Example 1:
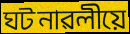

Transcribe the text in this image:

ঘটনাৱলীয়ে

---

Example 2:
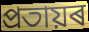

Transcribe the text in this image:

প্ৰতায়ৰ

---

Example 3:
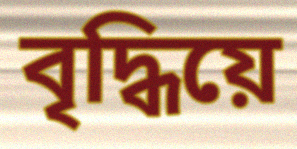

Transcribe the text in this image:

বৃদ্ধিয়ে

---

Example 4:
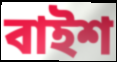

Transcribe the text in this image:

বাইশ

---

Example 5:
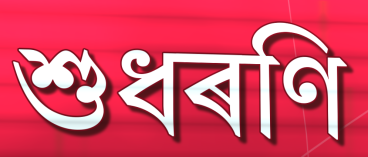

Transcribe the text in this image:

শুধৰণি